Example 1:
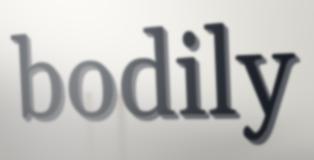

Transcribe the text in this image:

bodily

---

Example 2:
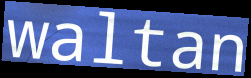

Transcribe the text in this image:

waltan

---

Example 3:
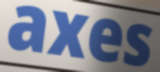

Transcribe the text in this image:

axes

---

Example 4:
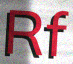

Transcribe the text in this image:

Rf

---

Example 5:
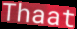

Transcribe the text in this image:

Thaat